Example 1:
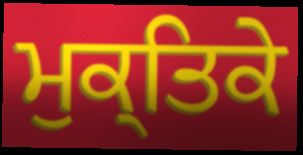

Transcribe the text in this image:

ਮੁਕ੍ਤਿਕੇ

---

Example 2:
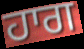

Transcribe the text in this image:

ਹਾਗ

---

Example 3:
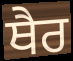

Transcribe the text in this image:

ਥੈਰ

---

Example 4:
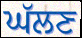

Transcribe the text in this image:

ਘੱਲਣ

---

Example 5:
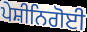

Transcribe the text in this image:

ਪੇਸ਼ੀਨਿਗੋਈ